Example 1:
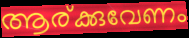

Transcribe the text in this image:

ആര്ക്കുവേണം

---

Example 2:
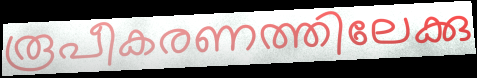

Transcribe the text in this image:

രൂപീകരണത്തിലേക്കു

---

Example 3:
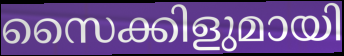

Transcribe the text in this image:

സൈക്കിളുമായി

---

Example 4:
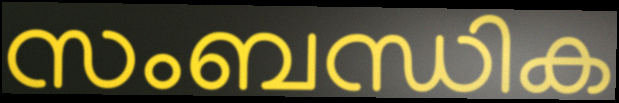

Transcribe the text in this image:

സംബന്ധിക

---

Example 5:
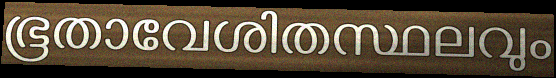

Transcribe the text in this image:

ഭൂതാവേശിതസ്ഥലവും